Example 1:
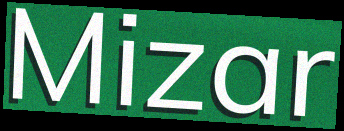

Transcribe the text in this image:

Mizar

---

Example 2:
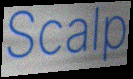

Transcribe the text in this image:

Scalp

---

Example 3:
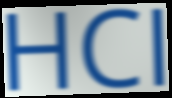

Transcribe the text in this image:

HCI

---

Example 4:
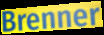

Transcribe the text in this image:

Brenner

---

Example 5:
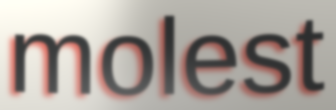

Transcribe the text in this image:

molest